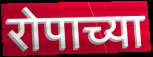
रोपाच्या